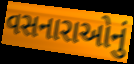
વસનારાઓનું